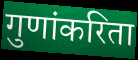
गुणांकरिता